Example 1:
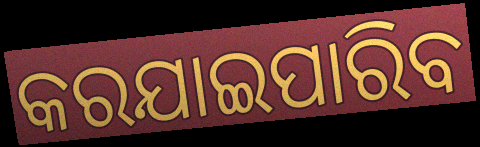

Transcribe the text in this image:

କରଯାଇପାରିବ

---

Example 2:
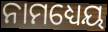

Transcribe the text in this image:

ନାମଧ୍ୟେୟ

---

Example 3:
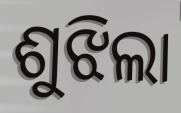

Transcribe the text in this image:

ଶୁଝିଲା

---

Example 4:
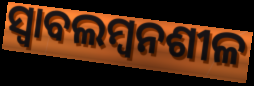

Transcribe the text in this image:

ସ୍ୱାବଲମ୍ୱନଶୀଳ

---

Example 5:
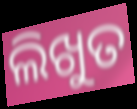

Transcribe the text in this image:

ଲିଖୁତ